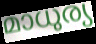
മാധുര്യ